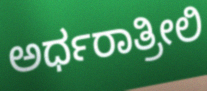
ಅರ್ಧರಾತ್ರೀಲಿ